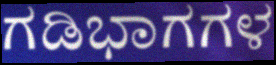
ಗಡಿಭಾಗಗಳ